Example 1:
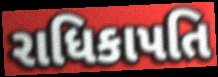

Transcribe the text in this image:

રાધિકાપતિ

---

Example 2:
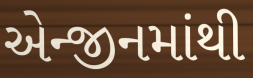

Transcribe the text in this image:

એન્જીનમાંથી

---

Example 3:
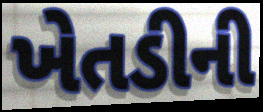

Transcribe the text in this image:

ખેતડીની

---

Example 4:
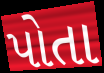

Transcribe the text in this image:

પોતા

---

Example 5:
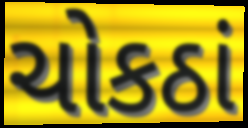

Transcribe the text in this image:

ચોકઠાં